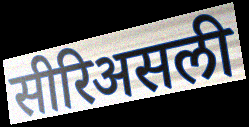
सीरिअसली